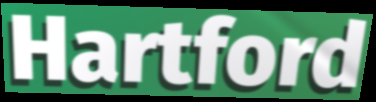
Hartford